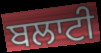
ਬਲਾਟੀ